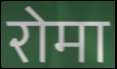
रोमा